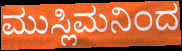
ಮುಸ್ಲಿಮನಿಂದ